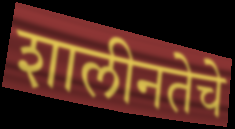
शालीनतेचे